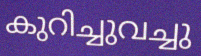
കുറിച്ചുവച്ചു